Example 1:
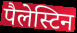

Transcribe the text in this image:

पैलेस्टिन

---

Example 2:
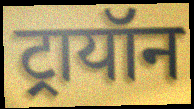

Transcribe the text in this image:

ट्रायॉन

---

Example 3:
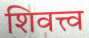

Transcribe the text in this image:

शिवत्त्व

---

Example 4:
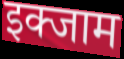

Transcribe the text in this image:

इक्जाम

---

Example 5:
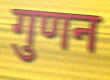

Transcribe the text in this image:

गुणन